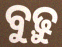
ବୁଢ଼ୁ